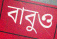
বাবুও